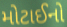
મોટાઈનો